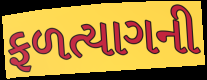
ફળત્યાગની